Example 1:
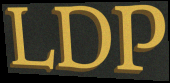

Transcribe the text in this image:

LDP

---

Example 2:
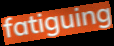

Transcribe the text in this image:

fatiguing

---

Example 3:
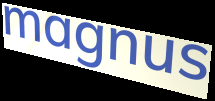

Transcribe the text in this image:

magnus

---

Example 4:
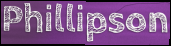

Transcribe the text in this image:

Phillipson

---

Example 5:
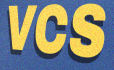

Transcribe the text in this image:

VCS